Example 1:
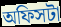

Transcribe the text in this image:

অফিসটা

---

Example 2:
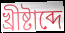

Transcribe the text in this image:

খ্রীষ্টাব্দে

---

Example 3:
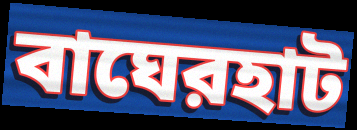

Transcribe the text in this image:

বাঘেরহাট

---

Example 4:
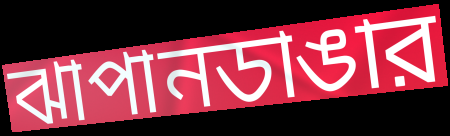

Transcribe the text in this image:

ঝাপানডাঙার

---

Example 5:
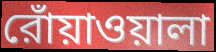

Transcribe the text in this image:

রোঁয়াওয়ালা